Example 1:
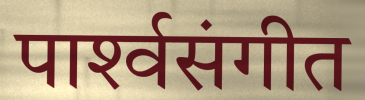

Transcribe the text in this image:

पार्श्‍वसंगीत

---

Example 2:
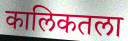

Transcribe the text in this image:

कालिकतला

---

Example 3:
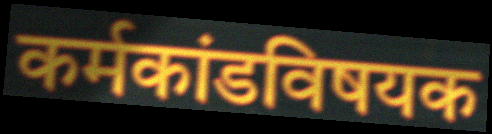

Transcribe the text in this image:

कर्मकांडविषयक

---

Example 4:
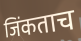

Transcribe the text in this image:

जिंकताच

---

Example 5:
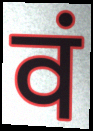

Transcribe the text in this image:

वं